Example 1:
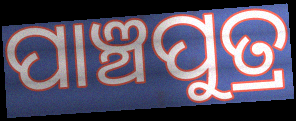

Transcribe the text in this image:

ପାଞ୍ଚପୁତ୍ର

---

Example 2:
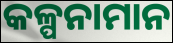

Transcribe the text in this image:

କଳ୍ପନାମାନ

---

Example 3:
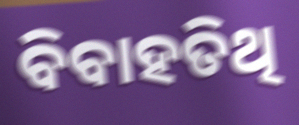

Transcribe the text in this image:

ବିବାହତିଥି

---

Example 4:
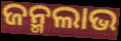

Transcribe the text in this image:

ଜନ୍ମଲାଭ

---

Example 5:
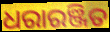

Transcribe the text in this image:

ଧରାରଞ୍ଜିତ